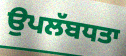
ਉਪਲੱਬਧਤਾ